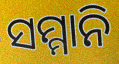
ସମ୍ମାନି